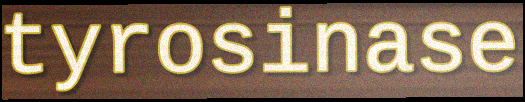
tyrosinase